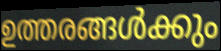
ഉത്തരങ്ങൾക്കും